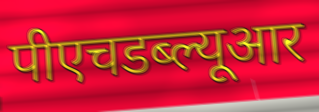
पीएचडब्ल्यूआर